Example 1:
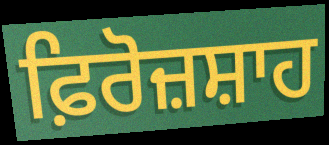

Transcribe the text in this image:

ਫ਼ਿਰੋਜ਼ਸ਼ਾਹ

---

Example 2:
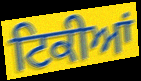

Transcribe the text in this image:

ਟਿਕੀਆਂ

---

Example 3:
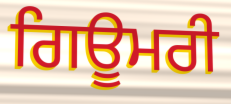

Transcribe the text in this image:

ਗਿਊਮਰੀ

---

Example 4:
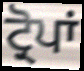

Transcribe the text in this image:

ਟ੍ਰੋਪਾਂ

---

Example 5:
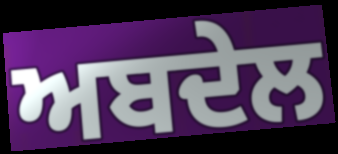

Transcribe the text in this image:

ਅਬਦੇਲ